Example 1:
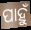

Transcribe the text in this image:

ପାହୁଁ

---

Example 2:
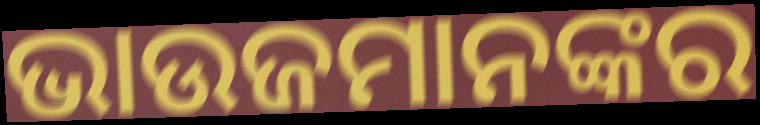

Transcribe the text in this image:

ଭାଉଜମାନଙ୍କର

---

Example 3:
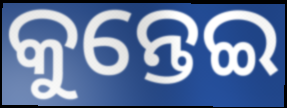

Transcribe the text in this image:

କୁନ୍ତେଇ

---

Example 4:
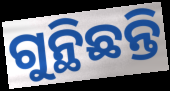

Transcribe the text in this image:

ଗୁନ୍ଥିଛନ୍ତି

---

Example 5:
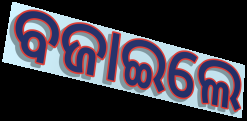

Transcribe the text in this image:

ବଜାଇଲେ